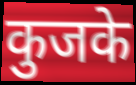
कुजके